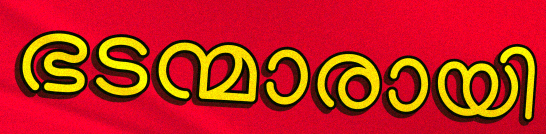
ഭടന്മാരായി